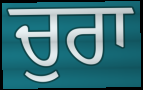
ਚੁਰਾ